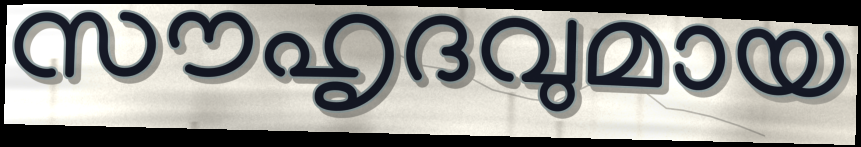
സൗഹൃദവുമായ